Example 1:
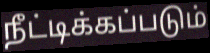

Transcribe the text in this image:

நீட்டிக்கப்படும்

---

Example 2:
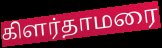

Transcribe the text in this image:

கிளர்தாமரை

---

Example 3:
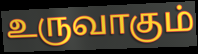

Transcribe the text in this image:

உருவாகும்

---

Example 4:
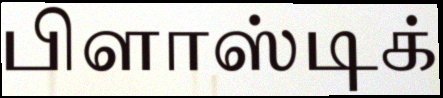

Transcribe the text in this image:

பிளாஸ்டிக்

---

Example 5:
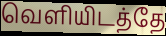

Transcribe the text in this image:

வெளியிடத்தே